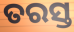
ତରସ୍ତ